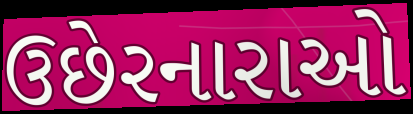
ઉછેરનારાઓ